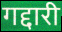
गद्दारी